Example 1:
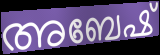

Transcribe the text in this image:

അബേഷ്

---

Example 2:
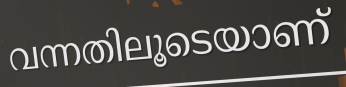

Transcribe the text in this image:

വന്നതിലൂടെയാണ്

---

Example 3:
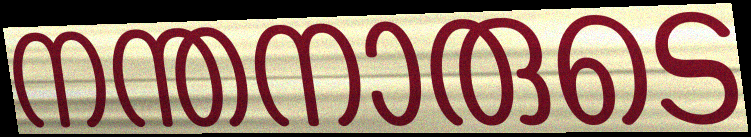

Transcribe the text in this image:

നന്തനാരുടെ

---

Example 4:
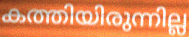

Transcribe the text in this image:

കത്തിയിരുന്നില്ല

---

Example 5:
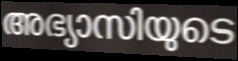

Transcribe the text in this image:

അഭ്യാസിയുടെ